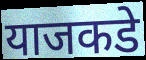
याजकडे